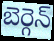
బెర్గెన్